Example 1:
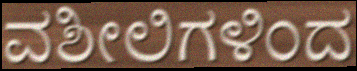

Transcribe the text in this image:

ವಶೀಲಿಗಳಿಂದ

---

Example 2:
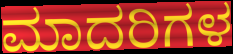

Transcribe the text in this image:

ಮಾದರಿಗಳ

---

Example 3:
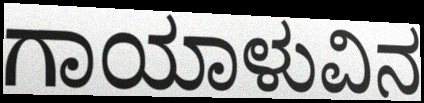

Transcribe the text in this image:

ಗಾಯಾಳುವಿನ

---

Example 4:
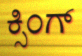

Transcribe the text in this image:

ಕ್ಸಿಂಗ್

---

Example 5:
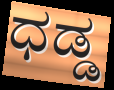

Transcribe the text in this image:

ಧಡ್ಡ